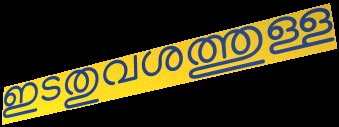
ഇടതുവശത്തുള്ള